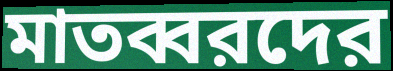
মাতব্বরদের